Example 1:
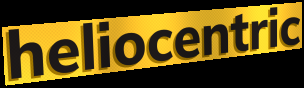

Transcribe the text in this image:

heliocentric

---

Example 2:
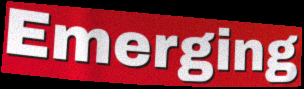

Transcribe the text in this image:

Emerging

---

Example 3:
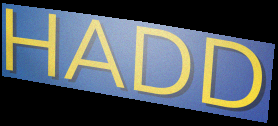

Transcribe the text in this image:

HADD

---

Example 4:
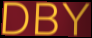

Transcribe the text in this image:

DBY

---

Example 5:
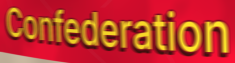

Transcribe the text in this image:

Confederation